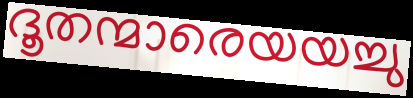
ദൂതന്മാരെയയച്ചു